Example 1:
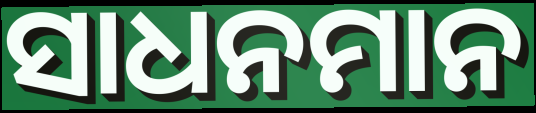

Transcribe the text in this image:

ସାଧନମାନ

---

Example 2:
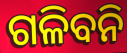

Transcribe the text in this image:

ଗଳିବନି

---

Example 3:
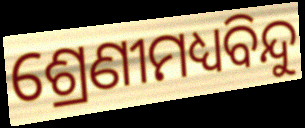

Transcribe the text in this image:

ଶ୍ରେଣୀମଧ୍ୟବିନ୍ଦୁ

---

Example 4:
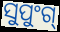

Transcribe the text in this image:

ସୁପୁଂଗ୍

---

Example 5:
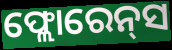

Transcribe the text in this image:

ଫ୍ଲୋରେନ୍‌ସ